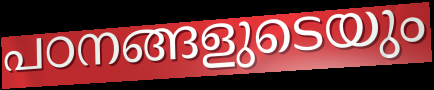
പഠനങ്ങളുടെയും